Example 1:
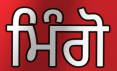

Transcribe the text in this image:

ਮਿੰਗੋ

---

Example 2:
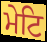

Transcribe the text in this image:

ਮੇਟਿ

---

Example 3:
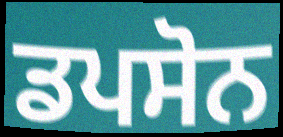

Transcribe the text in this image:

ਡਪਸੋਨ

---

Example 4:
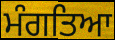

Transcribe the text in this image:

ਮੰਗਤਿਆ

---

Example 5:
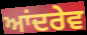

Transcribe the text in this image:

ਆਂਦਰੇਵ